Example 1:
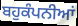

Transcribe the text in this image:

ਬਹੁਕੰਪਨੀਆਂ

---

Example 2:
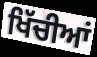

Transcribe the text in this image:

ਖਿੱਚੀਆਂ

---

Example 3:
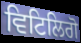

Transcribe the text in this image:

ਵਿਟਿਲਿਗੋ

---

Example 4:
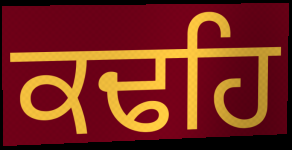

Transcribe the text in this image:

ਕਢਹਿ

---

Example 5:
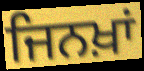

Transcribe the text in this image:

ਜਿਨਖ਼ਾਂ